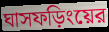
ঘাসফড়িংয়ের